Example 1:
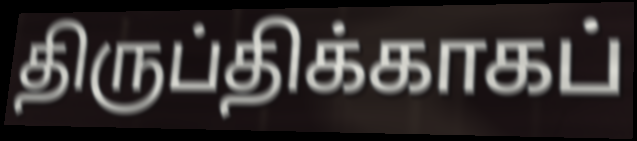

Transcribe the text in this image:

திருப்திக்காகப்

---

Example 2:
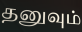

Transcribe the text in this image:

தனுவும்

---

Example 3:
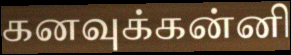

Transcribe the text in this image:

கனவுக்கன்னி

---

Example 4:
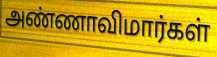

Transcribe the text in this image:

அண்ணாவிமார்கள்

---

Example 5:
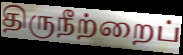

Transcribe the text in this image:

திருநீற்றைப்